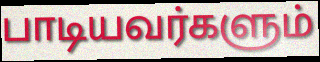
பாடியவர்களும்